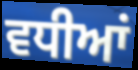
ਵਧੀਆਂ